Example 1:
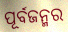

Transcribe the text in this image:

ପୂର୍ବଜନ୍ମର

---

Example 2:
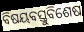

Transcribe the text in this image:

ବିଷୟବସ୍ତୁବିଶେଷ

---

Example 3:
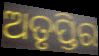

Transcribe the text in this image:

ଅତୃପ୍ତିର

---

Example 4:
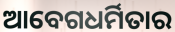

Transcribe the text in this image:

ଆବେଗଧର୍ମିତାର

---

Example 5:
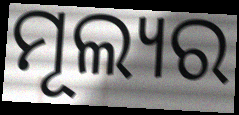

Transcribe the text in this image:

ମୂଲ୍ୟର